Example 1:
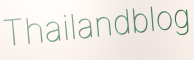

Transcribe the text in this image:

Thailandblog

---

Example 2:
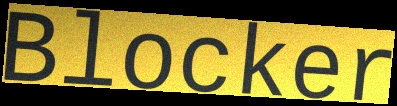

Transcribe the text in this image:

Blocker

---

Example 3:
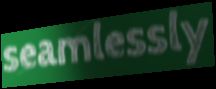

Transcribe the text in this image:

seamlessly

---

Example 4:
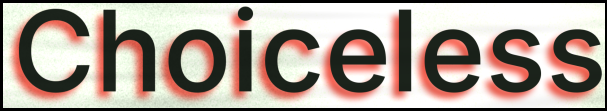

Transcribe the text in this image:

Choiceless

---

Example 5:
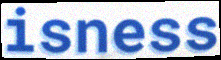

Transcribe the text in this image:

isness